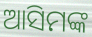
ଆସିମଙ୍କ